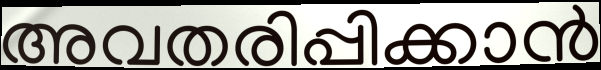
അവതരിപ്പിക്കാൻ